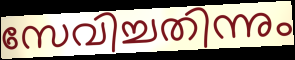
സേവിച്ചതിന്നും